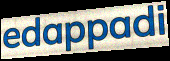
edappadi